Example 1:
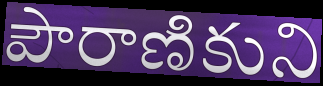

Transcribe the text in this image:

పౌరాణికుని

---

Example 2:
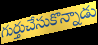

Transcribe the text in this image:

గుర్తుచేసుకొన్నాడు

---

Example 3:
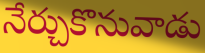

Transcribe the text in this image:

నేర్చుకొనువాడు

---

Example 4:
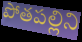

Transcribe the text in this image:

పోతపల్లిని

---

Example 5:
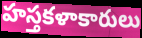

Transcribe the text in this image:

హస్తకళాకారులు